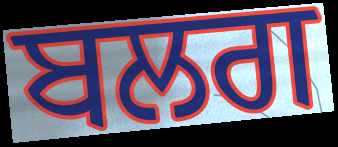
ਬਲਗ